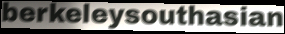
berkeleysouthasian